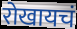
रोखायचं